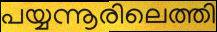
പയ്യന്നൂരിലെത്തി